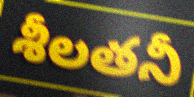
శీలతనీ